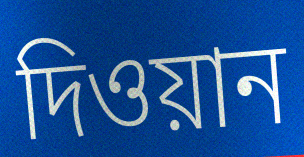
দিওয়ান